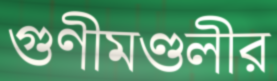
গুণীমণ্ডলীর